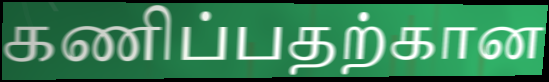
கணிப்பதற்கான